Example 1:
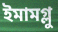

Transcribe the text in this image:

ইমামগ্লু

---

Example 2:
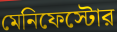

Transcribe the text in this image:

মেনিফেস্টোর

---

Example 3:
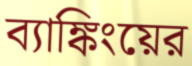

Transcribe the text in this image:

ব্যাঙ্কিংয়ের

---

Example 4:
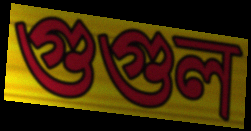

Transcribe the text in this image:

গুগুল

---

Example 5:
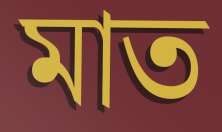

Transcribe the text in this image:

মাত